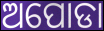
ଅପୋଡା